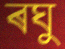
ৰঘু